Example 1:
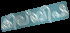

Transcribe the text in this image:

കില്ബിഷ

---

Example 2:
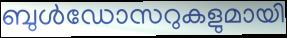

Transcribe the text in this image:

ബുൾഡോസറുകളുമായി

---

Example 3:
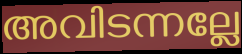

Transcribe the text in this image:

അവിടന്നല്ലേ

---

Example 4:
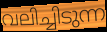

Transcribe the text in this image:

വലിച്ചിടുന്ന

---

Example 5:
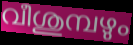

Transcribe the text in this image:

വീശുമ്പഴും